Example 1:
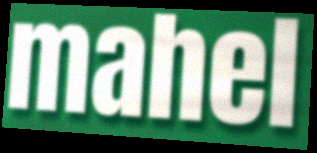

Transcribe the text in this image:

mahel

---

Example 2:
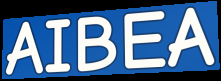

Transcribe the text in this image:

AIBEA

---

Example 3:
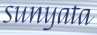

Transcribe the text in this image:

sunyata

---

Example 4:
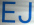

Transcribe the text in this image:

EJ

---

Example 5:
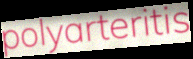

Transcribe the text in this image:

polyarteritis